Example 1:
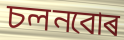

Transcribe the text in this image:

চলনবোৰ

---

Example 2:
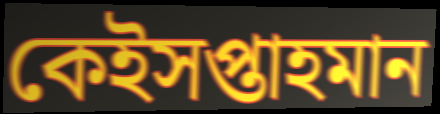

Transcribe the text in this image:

কেইসপ্তাহমান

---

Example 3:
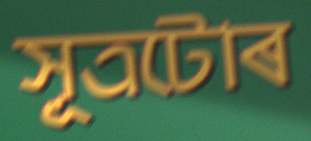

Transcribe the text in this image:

সূত্ৰটোৰ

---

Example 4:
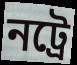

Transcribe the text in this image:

নট্ৰে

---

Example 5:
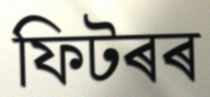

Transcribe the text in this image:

ফিটৰৰ